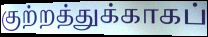
குற்றத்துக்காகப்